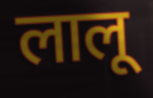
लालू